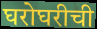
घरोघरीची